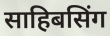
साहिबसिंग